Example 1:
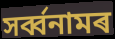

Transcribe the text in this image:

সৰ্ব্বনামৰ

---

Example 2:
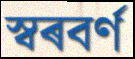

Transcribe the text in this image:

স্বৰবৰ্ণ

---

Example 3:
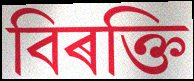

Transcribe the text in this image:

বিৰক্তি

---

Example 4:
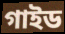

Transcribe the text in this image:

গাইড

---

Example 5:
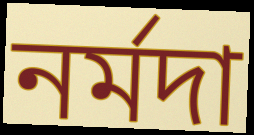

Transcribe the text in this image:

নৰ্মদা